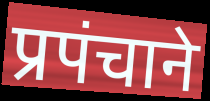
प्रपंचाने